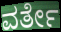
ವರ್ತೇ